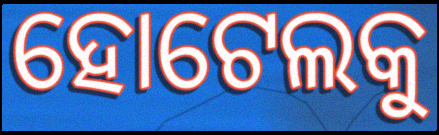
ହୋଟେଲକୁ